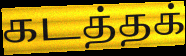
கடத்தக்